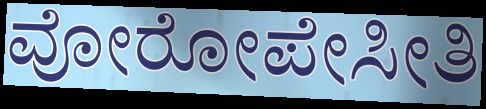
ವೋರೋಪೇಸೀತಿ